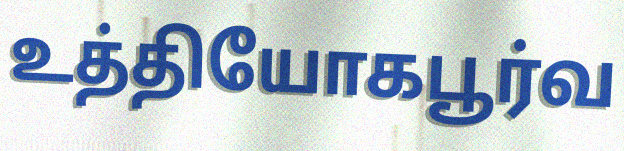
உத்தியோகபூர்வ